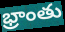
భ్రాంతు